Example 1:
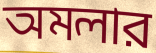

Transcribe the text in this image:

অমলার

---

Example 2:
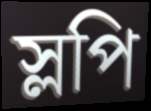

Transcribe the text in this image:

স্লপি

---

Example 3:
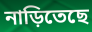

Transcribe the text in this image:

নাড়িতেছে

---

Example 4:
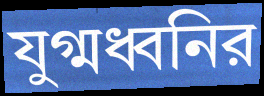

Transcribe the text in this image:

যুগ্মধ্বনির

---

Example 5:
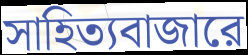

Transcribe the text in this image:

সাহিত্যবাজারে